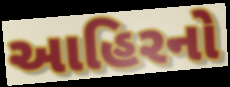
આહિરનો